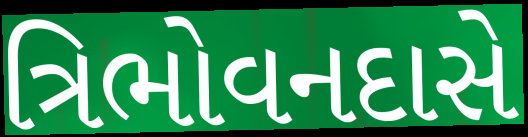
ત્રિભોવનદાસે